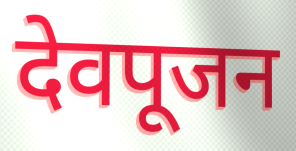
देवपूजन